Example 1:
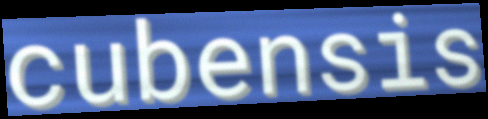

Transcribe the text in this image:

cubensis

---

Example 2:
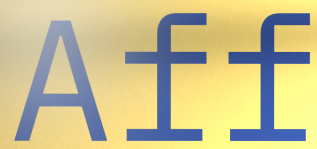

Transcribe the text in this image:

Aff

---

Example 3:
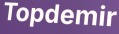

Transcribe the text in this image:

Topdemir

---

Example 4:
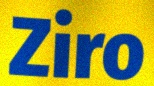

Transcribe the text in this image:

Ziro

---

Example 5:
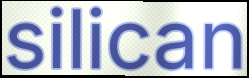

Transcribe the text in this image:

silican